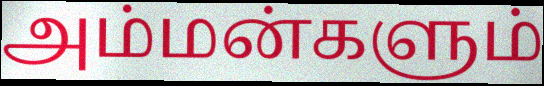
அம்மன்களும்